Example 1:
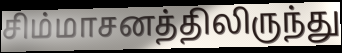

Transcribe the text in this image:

சிம்மாசனத்திலிருந்து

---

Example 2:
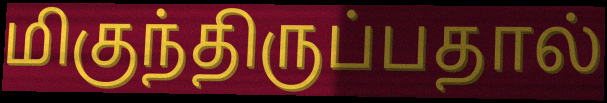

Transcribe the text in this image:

மிகுந்திருப்பதால்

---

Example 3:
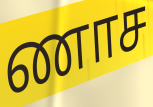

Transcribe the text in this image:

ணாச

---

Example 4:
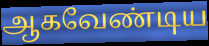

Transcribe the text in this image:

ஆகவேண்டிய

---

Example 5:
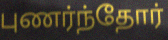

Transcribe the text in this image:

புணர்ந்தோர்